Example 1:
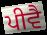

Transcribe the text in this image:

ਪੀਵੈ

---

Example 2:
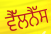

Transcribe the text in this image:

ਵੈੱਲਨੈੱਸ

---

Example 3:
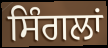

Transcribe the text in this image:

ਸਿੰਗਲਾਂ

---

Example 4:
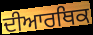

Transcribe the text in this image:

ਦੀਆਰਥਿਕ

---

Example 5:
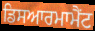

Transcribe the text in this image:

ਡਿਸਆਰਮਾਮੈਂਟ